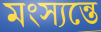
মংস্যন্তে